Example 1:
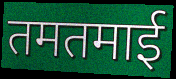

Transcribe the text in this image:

तमतमाई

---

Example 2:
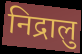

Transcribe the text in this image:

निद्रालु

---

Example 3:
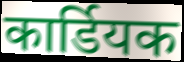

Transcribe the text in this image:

कार्डियक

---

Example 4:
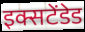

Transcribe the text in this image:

इक्सटेंडेड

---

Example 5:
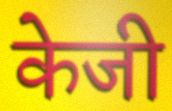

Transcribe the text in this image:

केजी